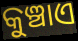
କୁଞ୍ଚାଏ